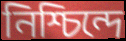
নিশ্চিন্দে